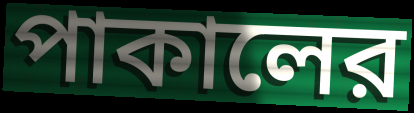
পাকালের